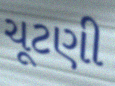
ચૂટણી